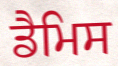
ਡੈਮਿਸ